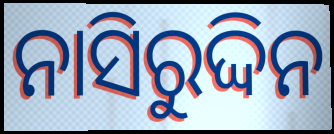
ନାସିରୁଦ୍ଦିନ